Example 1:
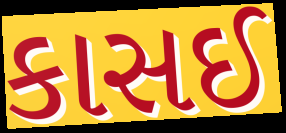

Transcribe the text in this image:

કાસઈ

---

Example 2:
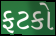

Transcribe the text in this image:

ફટકો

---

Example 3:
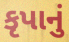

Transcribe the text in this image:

કૃપાનું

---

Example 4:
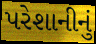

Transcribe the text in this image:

પરેશાનીનું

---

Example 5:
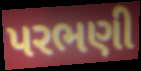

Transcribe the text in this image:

પરભણી